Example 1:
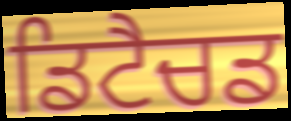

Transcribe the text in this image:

ਡਿਟੈਚਡ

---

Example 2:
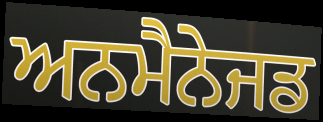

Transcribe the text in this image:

ਅਨਮੈਨੇਜਡ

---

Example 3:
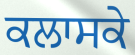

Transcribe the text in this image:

ਕਲਾਸਕੇ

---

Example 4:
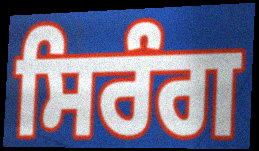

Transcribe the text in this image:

ਸਿਰੰਗ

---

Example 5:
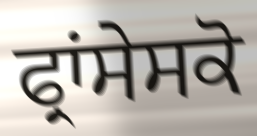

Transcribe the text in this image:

ਫ੍ਰਾਂਸੇਸਕੋ